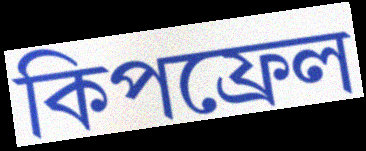
কিপফ্রেল